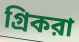
গ্রিকরা